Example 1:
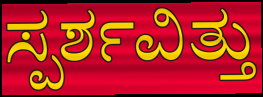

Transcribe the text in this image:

ಸ್ಪರ್ಶವಿತ್ತು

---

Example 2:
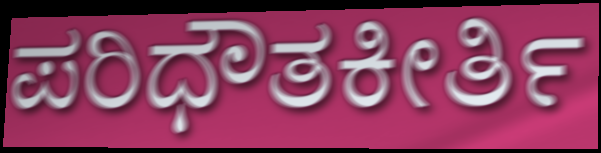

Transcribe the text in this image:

ಪರಿಧೌತಕೀರ್ತಿ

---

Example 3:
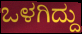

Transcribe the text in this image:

ಒಳಗಿದ್ದು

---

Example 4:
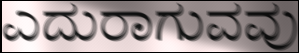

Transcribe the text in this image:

ಎದುರಾಗುವವು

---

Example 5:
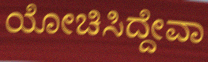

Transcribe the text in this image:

ಯೋಚಿಸಿದ್ದೇವಾ